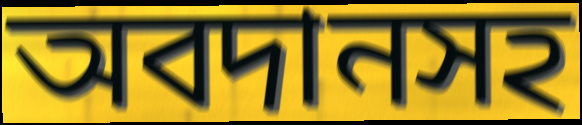
অবদানসহ